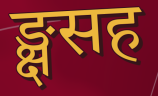
ङ्क्षसह